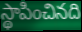
స్థాపించినది